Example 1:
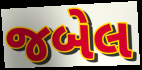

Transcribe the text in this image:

જબેલ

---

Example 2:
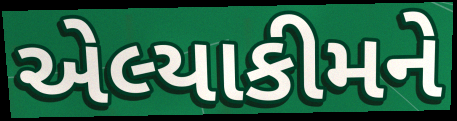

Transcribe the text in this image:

એલ્યાકીમને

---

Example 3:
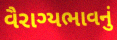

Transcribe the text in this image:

વૈરાગ્યભાવનું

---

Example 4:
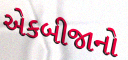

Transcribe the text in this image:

એકબીજાનો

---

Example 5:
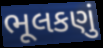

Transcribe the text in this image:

ભૂલકણું